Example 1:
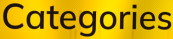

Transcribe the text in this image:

Categories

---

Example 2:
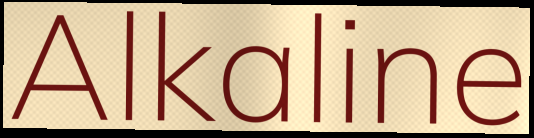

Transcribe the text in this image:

Alkaline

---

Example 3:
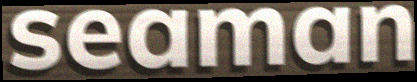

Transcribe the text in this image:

seaman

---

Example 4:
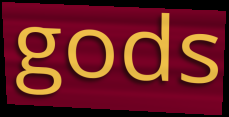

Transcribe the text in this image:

gods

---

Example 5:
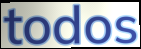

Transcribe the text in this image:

todos